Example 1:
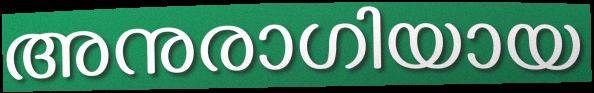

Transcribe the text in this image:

അനുരാഗിയായ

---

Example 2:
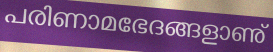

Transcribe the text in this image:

പരിണാമഭേദങ്ങളാണു്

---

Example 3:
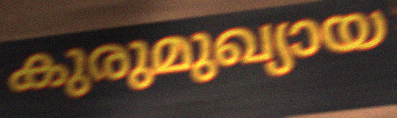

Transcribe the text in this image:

കുരുമുഖ്യായ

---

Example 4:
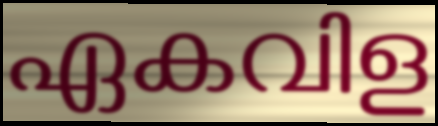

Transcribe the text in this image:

ഏകവിള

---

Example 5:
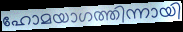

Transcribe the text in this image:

ഹോമയാഗത്തിന്നായി